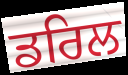
ਡਰਿਲ